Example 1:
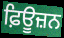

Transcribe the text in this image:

ਫ਼ਿਊਜ਼ਨ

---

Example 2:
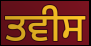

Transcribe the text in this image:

ਤਵੀਸ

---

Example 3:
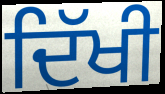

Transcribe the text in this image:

ਦਿੱਖੀ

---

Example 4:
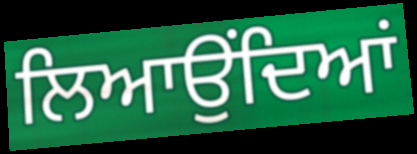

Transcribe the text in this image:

ਲਿਆਉਂਦਿਆਂ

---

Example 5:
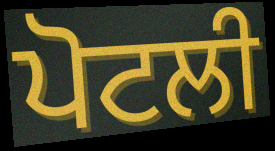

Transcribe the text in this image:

ਪੋਟਲੀ